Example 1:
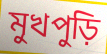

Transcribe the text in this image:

মুখপুড়ি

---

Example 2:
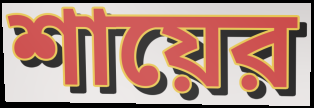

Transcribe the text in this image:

শায়ের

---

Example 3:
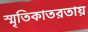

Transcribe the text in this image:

স্মৃতিকাতরতায়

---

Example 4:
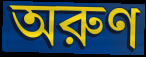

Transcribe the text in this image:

অরুণ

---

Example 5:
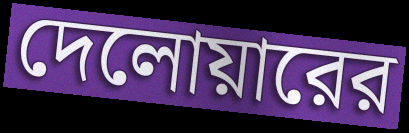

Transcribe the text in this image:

দেলোয়ারের